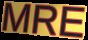
MRE